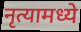
नृत्यामध्ये